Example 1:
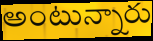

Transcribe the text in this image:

అంటున్నారు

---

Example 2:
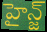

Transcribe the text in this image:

హైన్జ్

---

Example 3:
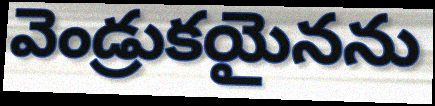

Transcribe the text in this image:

వెండ్రుకయైనను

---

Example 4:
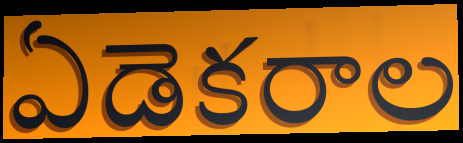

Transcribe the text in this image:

ఏడెకరాల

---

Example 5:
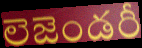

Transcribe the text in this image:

లెజెండరీ